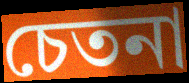
চেতনা